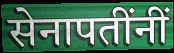
सेनापतींनीं